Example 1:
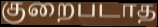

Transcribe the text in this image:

குறைபடாத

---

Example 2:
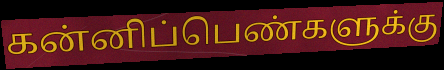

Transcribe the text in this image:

கன்னிப்பெண்களுக்கு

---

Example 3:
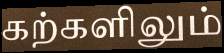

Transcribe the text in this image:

கற்களிலும்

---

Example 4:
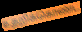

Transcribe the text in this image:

உதறிக்கொண்ட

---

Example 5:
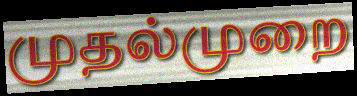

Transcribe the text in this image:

முதல்முறை